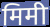
मिमी